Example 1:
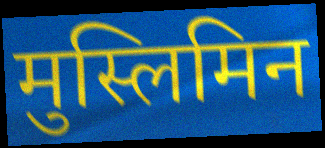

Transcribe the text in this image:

मुस्लिमिन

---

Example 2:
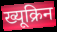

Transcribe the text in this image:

ख्यूक्रिन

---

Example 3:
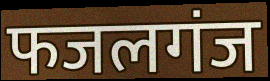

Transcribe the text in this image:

फजलगंज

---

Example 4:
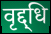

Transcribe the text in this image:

वृद्द्धि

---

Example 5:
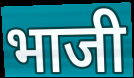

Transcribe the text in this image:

भाजी